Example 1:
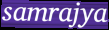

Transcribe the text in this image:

samrajya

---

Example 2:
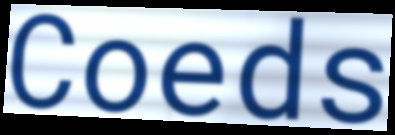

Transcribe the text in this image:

Coeds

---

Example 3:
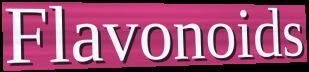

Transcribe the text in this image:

Flavonoids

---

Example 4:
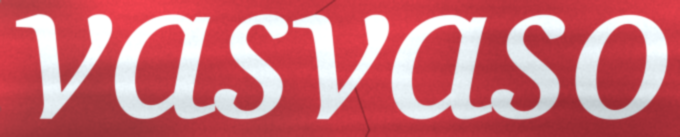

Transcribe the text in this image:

vasvaso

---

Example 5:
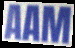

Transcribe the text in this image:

AAM